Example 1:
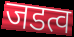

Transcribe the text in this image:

जडत्व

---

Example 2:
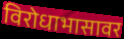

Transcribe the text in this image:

विरोधाभासावर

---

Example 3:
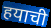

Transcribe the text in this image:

हयाची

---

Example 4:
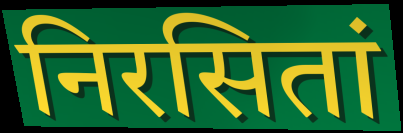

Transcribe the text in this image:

निरसितां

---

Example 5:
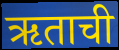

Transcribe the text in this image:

ऋताची